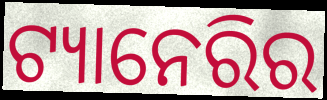
ଟ୍ୟାନେରିର